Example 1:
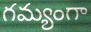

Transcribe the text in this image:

గమ్యంగా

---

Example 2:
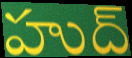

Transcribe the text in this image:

హుద్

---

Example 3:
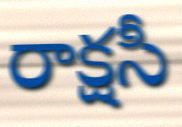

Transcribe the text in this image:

రాక్షసీ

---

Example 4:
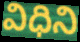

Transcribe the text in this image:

విధిని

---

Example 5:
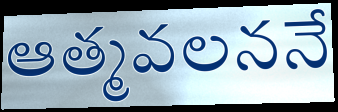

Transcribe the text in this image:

ఆత్మవలననే